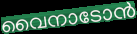
വൈനാടോൻ